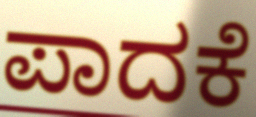
ಪಾದಕೆ